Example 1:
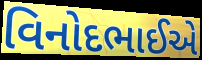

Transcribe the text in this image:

વિનોદભાઈએ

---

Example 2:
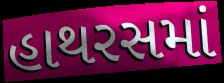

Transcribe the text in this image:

હાથરસમાં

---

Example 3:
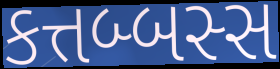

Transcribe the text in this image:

કત્તબ્બસ્સ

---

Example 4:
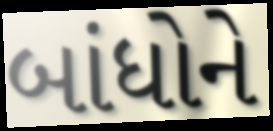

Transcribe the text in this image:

બાંધોને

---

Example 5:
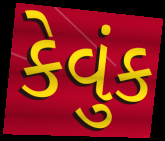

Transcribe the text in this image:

કેવુંક